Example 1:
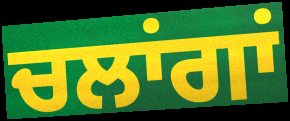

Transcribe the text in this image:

ਚਲਾਂਗਾਂ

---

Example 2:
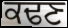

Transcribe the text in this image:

ਕਢਣ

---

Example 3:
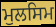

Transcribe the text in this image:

ਮੁਲਸਿਮ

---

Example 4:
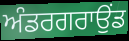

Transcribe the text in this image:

ਅੰਡਰਗਰਾਉਂਡ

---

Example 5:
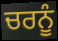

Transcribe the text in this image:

ਚਰਨੂੰ